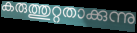
കരുത്തുറ്റതാക്കുന്നു